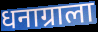
धनाग्राला